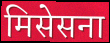
मिसेसना